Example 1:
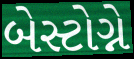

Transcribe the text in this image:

બેસ્ટોગ્ને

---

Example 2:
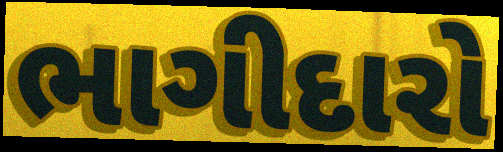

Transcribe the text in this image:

ભાગીદારો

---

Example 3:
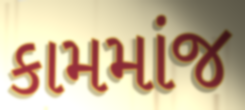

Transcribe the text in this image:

કામમાંજ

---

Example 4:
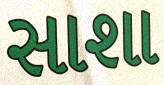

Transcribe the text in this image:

સાશા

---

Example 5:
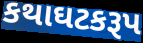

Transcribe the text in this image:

કથાઘટકરૂપ